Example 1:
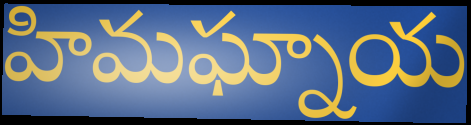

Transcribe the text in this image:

హిమఘ్నాయ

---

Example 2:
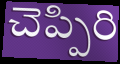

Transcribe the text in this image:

చెప్పిరి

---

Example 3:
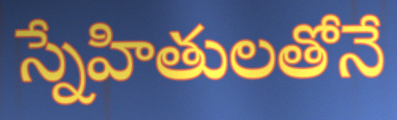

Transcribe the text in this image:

స్నేహితులతోనే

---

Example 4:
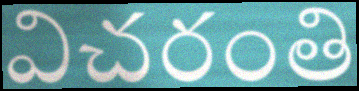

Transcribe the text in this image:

విచరంతి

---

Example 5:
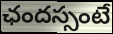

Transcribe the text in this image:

ఛందస్సంటే